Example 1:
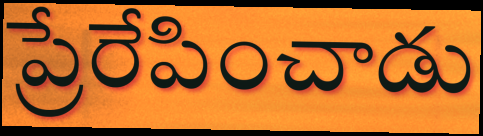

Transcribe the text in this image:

ప్రేరేపించాడు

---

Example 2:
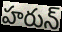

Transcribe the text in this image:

హరున్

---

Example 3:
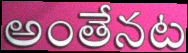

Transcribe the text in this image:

అంతేనట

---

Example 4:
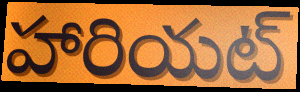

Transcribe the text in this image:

హారియట్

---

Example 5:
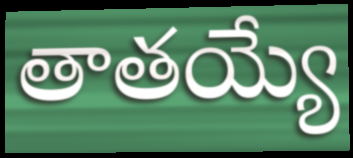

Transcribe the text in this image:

తాతయ్యే